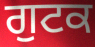
ਗੁਟਕ